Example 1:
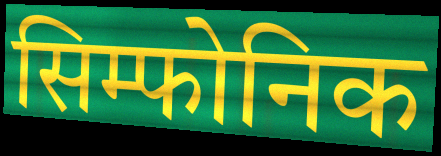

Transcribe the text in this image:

सिम्फोनिक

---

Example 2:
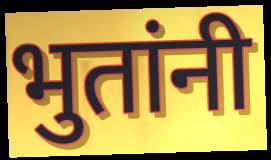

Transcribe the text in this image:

भुतांनी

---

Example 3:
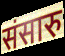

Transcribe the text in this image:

संसारु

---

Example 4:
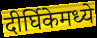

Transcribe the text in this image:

दीर्घिकेमध्ये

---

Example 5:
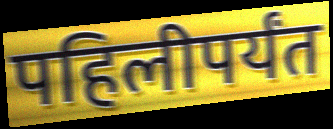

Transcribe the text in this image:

पहिलीपर्यंत